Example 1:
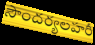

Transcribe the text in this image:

సౌందర్యలహరీ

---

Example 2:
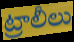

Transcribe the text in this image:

ట్రాలీలు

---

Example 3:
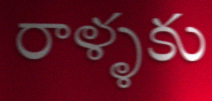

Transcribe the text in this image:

రాళ్ళకు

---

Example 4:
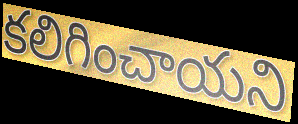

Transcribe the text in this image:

కలిగించాయని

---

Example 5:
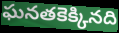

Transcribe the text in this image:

ఘనతకెక్కినది